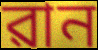
ৱান